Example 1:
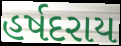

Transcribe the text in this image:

હર્ષદરાય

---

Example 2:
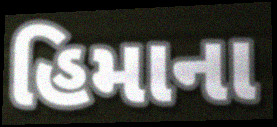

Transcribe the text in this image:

હિમાના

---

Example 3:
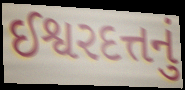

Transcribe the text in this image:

ઈશ્વરદત્તનું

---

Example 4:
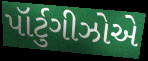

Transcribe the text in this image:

પૉર્ટુગીઝોએ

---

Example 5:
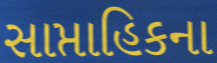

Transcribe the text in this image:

સાપ્તાહિકના